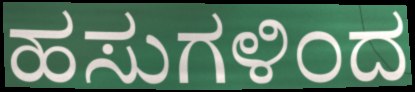
ಹಸುಗಳಿಂದ